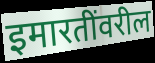
इमारतींवरील